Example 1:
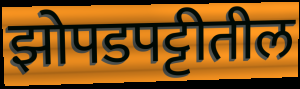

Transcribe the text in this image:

झोपडपट्टीतील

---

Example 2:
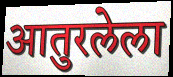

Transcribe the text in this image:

आतुरलेला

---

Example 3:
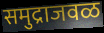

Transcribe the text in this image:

समुद्राजवळ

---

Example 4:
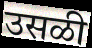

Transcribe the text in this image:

उसळी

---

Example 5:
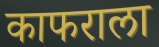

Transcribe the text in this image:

काफराला